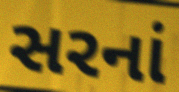
સરનાં